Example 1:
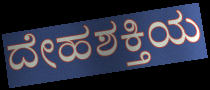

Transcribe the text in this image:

ದೇಹಶಕ್ತಿಯ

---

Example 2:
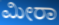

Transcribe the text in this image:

ಮೀರಾ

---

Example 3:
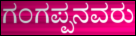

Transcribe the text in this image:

ಗಂಗಪ್ಪನವರು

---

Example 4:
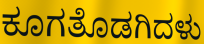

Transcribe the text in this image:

ಕೂಗತೊಡಗಿದಳು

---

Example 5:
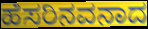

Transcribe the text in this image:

ಹೆಸರಿನವನಾದ